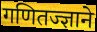
गणितज्ज्ञाने